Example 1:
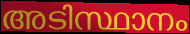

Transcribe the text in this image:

അടിസ്ഥാനം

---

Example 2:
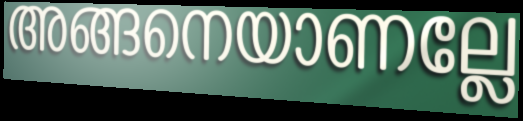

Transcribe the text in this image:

അങ്ങനെയാണല്ലേ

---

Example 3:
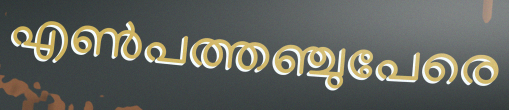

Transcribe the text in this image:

എൺപത്തഞ്ചുപേരെ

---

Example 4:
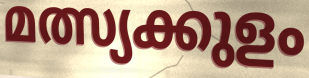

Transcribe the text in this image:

മത്സ്യക്കുളം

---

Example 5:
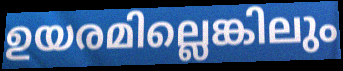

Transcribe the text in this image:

ഉയരമില്ലെങ്കിലും